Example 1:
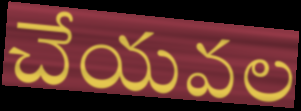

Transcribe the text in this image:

చేయవల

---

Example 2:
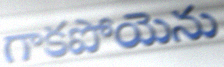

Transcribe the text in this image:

గాకపోయెను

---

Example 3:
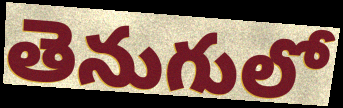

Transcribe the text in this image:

తెనుగులో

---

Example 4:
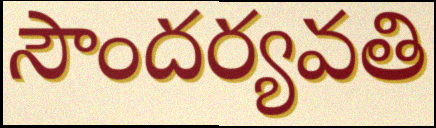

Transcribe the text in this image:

సౌందర్యవతి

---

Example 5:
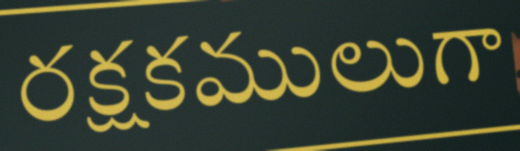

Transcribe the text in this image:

రక్షకములుగా